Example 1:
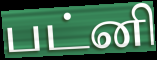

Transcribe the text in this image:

பட்னி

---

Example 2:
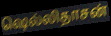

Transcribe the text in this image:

ஷெல்லிதாசன்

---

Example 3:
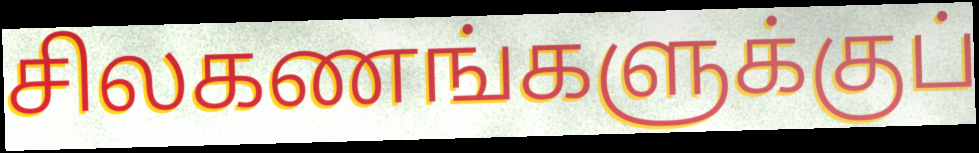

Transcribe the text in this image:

சிலகணங்களுக்குப்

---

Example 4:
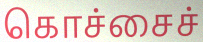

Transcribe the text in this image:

கொச்சைச்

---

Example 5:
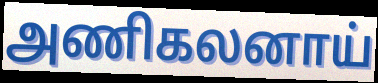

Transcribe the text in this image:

அணிகலனாய்